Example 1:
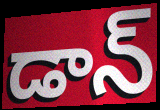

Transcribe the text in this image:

డాన్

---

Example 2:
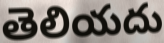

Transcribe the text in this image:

తెలియదు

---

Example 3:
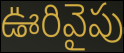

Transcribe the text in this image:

ఊరివైపు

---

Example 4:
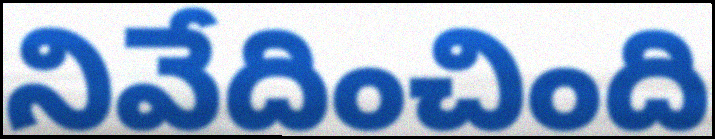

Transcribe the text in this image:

నివేదించింది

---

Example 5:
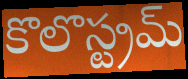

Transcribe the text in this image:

కొలొస్ట్రమ్